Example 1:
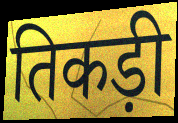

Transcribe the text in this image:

तिकड़ी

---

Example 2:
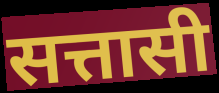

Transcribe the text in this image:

सत्तासी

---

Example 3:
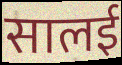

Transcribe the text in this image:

सालई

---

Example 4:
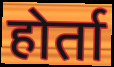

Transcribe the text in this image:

होर्ता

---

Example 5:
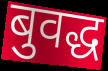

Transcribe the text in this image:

बुवद्ध